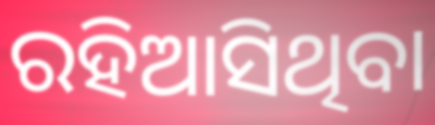
ରହିଆସିଥିବା